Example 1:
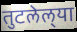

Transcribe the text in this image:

तुटलेल्या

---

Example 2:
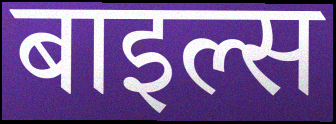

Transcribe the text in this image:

बाइल्स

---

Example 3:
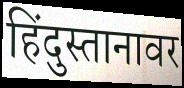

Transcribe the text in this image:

हिंदुस्तानावर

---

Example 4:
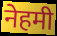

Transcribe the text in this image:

नेहमी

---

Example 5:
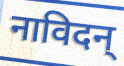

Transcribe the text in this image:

नाविदन्